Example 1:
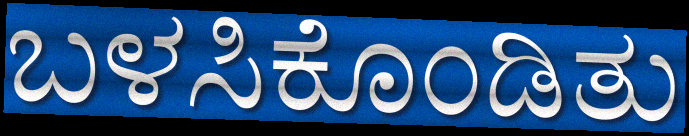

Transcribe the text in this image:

ಬಳಸಿಕೊಂಡಿತು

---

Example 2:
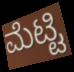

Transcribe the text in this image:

ಮೆಟ್ಟಿ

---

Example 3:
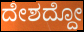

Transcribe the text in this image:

ದೇಶದ್ದೋ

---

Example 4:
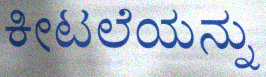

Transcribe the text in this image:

ಕೀಟಲೆಯನ್ನು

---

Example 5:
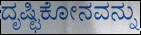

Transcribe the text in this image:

ದೃಷ್ಟಿಕೋನವನ್ನು